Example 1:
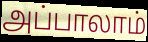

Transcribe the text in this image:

அப்பாலாம்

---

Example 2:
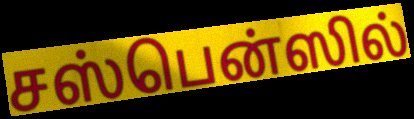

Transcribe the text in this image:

சஸ்பென்ஸில்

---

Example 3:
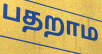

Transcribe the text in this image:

பதறாம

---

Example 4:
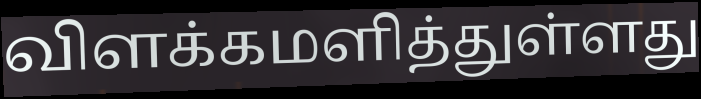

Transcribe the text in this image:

விளக்கமளித்துள்ளது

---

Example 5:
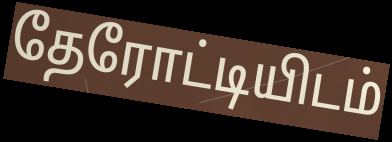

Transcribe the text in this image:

தேரோட்டியிடம்